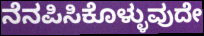
ನೆನಪಿಸಿಕೊಳ್ಳುವುದೇ